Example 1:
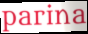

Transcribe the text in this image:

parina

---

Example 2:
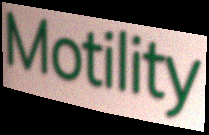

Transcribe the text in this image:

Motility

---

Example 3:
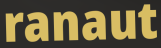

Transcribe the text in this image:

ranaut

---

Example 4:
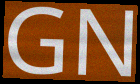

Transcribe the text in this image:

GN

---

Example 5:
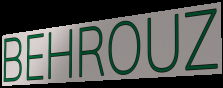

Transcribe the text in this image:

BEHROUZ